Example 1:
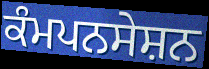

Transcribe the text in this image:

ਕੰਮਪਨਸੇਸ਼ਨ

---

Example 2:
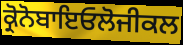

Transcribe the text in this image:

ਕ੍ਰੋਨੋਬਾਇਓਲੋਜੀਕਲ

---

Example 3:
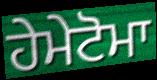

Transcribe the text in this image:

ਹੇਮੇਟੋਮਾ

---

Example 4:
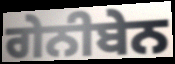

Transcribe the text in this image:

ਗੇਨੀਬੇਨ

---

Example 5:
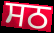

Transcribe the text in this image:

ਸਠ